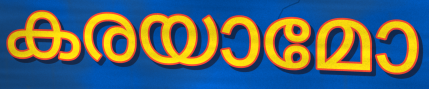
കരയാമോ